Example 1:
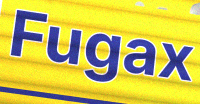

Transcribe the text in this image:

Fugax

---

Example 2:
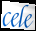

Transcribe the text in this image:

cele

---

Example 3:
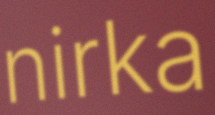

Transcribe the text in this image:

nirka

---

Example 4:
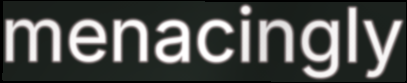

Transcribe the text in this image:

menacingly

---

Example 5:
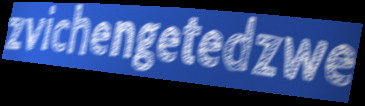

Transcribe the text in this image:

zvichengetedzwe